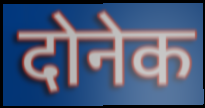
दोनेक